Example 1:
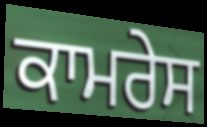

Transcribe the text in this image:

ਕਾਮਰੇਸ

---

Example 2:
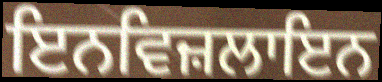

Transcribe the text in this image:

ਇਨਵਿਜ਼ਲਾਇਨ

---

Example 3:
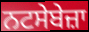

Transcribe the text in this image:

ਨਟਸੇਬੇਜ਼ਾ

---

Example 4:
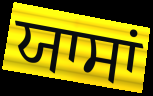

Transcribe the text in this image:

ਯਾਸਾਂ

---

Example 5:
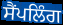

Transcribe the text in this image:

ਸੈਂਪਲਿੰਗ